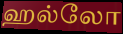
ஹல்லோ